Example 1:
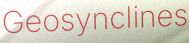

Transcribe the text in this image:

Geosynclines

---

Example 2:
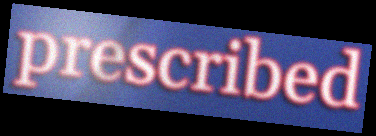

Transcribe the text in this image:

prescribed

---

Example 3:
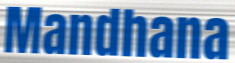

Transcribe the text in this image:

Mandhana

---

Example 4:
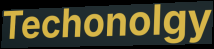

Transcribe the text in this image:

Techonolgy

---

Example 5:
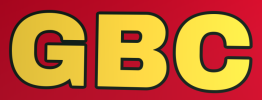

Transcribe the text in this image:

GBC